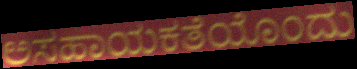
ಅಸಹಾಯಕತೆಯೊಂದು